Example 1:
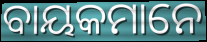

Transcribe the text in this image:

ବାୟକମାନେ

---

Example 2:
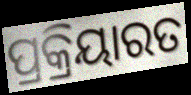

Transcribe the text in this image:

ପ୍ରକ୍ରିୟାରତ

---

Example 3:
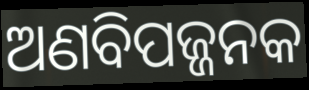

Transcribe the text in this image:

ଅଣବିପଜ୍ଜନକ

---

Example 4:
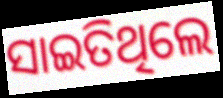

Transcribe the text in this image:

ସାଇତିଥିଲେ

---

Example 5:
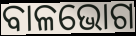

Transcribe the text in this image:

ବାଳଭୋଗ